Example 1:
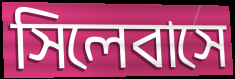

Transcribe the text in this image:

সিলেবাসে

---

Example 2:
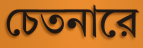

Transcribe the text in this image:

চেতনারে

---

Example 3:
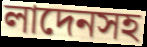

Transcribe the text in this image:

লাদেনসহ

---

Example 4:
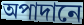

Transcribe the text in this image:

অপাদানে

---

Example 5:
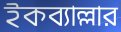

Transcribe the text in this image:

ইকব্যাল্লার